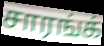
சாரங்க்